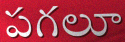
పగలూ